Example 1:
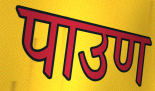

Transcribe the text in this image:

पाउण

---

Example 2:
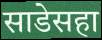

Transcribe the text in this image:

साडेसहा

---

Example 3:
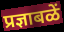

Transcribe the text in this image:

प्रज्ञाबळें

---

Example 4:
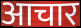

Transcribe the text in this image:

आचार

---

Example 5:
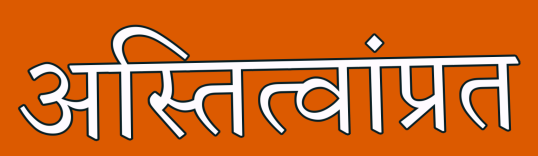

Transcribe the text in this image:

अस्तित्वांप्रत